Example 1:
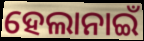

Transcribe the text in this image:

ହେଲାନାଇଁ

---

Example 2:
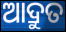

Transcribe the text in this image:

ଆଦ୍ରୁତ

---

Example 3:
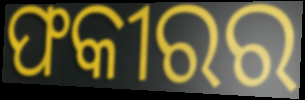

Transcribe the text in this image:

ଫକୀରର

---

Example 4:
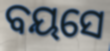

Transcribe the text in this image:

ବୟସେ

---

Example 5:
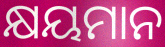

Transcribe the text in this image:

କ୍ଷୟମାନ